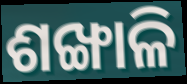
ଶଙ୍ଖାଳି